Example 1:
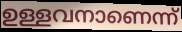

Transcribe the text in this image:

ഉള്ളവനാണെന്ന്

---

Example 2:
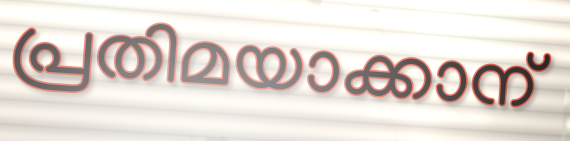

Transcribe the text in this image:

പ്രതിമയാക്കാന്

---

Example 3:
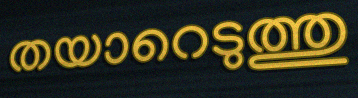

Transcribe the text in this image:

തയാറെടുത്തു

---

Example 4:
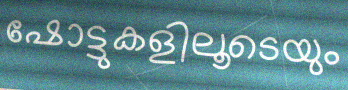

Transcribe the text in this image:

ഷോട്ടുകളിലൂടെയും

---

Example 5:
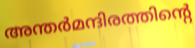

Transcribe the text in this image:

അന്തർമന്ദിരത്തിന്റെ